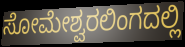
ಸೋಮೇಶ್ವರಲಿಂಗದಲ್ಲಿ